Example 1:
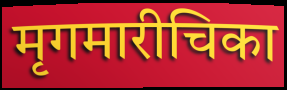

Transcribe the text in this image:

मृगमारीचिका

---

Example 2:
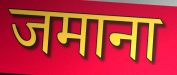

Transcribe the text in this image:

जमाना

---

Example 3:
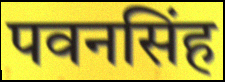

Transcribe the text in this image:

पवनसिंह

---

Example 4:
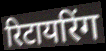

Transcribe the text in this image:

रिटायरिंग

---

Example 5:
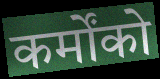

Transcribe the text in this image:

कर्मोंको